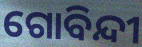
ଗୋବିନ୍ଦୀ